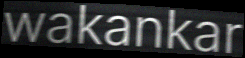
wakankar